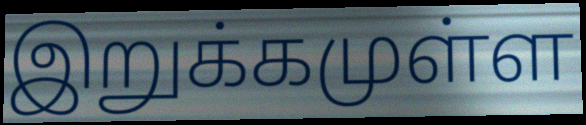
இறுக்கமுள்ள